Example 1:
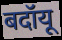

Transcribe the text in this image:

बदॉयू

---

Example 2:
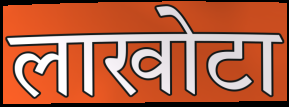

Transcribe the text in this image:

लाखोटा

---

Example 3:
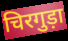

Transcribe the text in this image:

चिरगुड़ा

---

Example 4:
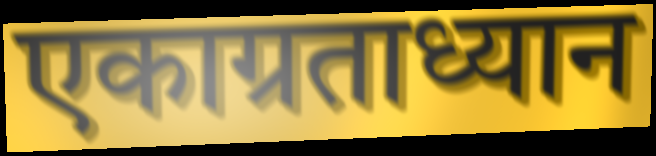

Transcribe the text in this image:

एकाग्रताध्यान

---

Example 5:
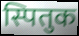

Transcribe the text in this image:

स्पितुक